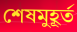
শেষমুহূর্ত